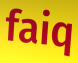
faiq